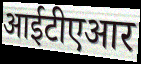
आईटीएआर